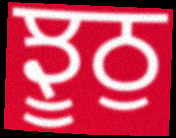
ਝੂਠੁ